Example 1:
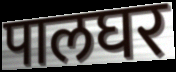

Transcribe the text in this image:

पालघर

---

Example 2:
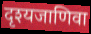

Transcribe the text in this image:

दृश्यजाणिवा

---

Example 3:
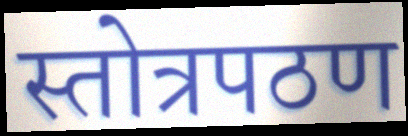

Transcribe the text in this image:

स्तोत्रपठण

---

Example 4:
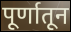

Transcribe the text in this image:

पूर्णातून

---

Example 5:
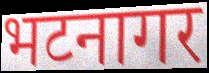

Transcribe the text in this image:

भटनागर